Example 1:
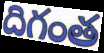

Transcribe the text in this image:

దిగంత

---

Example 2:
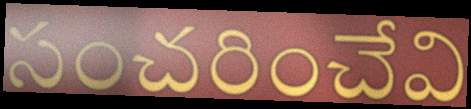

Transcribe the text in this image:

సంచరించేవి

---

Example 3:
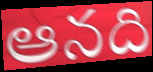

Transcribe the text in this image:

ఆనది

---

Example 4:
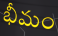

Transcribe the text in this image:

భీమం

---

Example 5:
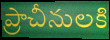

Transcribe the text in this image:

ప్రాచీనులకి